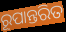
ରୂପାନ୍ତରିତ